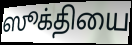
ஸூக்தியை